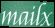
mailx